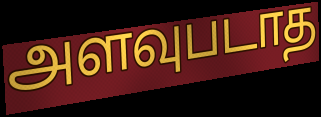
அளவுபடாத